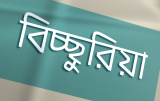
বিচ্ছুরিয়া